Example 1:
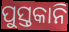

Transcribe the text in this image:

ପୁସ୍ତକାନି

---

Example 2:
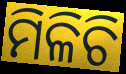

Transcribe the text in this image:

ମିଳିଚି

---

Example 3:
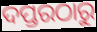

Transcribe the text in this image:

ଦପ୍ତରଠାରୁ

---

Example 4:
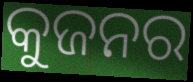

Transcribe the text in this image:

କୁଜନର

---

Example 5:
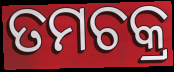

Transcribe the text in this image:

ତମଚକ୍ର